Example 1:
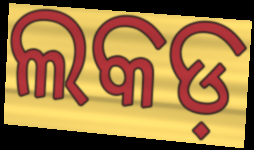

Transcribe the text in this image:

ଲକଡ଼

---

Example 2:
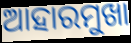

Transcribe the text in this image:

ଆହାରମୁଖା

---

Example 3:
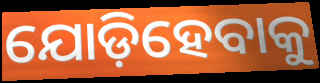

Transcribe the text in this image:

ଯୋଡ଼ିହେବାକୁ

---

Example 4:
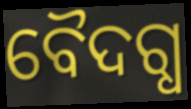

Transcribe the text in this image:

ବୈଦଗ୍ଧ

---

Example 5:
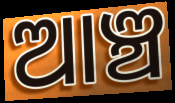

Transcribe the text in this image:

ଆଞ୍ଚ